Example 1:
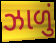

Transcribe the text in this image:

ઝાળું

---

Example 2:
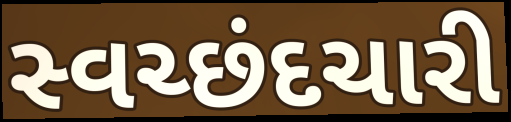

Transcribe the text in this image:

સ્વચ્છંદચારી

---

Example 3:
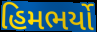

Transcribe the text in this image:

હિમભર્યો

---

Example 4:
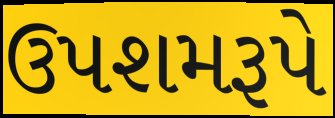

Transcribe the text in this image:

ઉપશમરૂપે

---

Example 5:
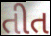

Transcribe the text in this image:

તીત